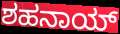
ಶಹನಾಯ್